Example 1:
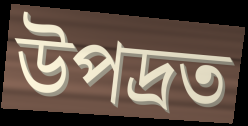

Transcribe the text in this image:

উপদ্রত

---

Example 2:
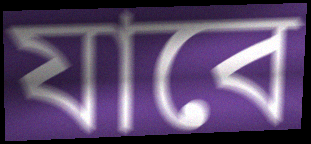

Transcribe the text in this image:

যাবে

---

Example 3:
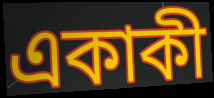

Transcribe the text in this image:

একাকী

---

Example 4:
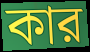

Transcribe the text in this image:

কার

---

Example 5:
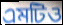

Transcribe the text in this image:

এমটিও